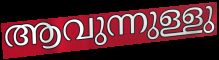
ആവുന്നുള്ളു